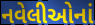
નવેલીઓનાં